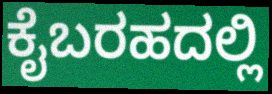
ಕೈಬರಹದಲ್ಲಿ